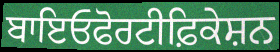
ਬਾਇਓਫੋਰਟੀਫ਼ਿਕੇਸ਼ਨ